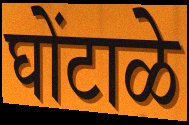
घोंटाळे